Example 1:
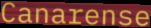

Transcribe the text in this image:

Canarense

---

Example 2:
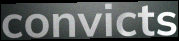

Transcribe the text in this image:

convicts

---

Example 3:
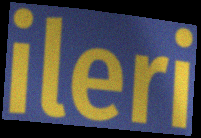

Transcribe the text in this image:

ileri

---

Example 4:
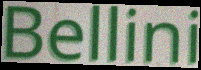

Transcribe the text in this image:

Bellini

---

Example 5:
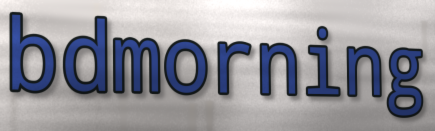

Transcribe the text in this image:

bdmorning